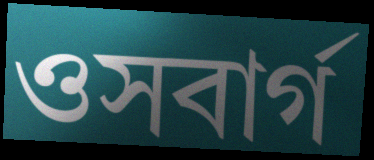
ওসবার্গ